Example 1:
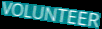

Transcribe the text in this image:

VOLUNTEER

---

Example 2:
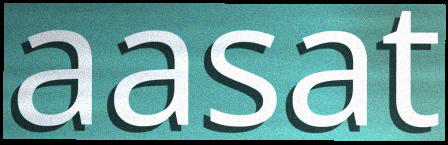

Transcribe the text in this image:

aasat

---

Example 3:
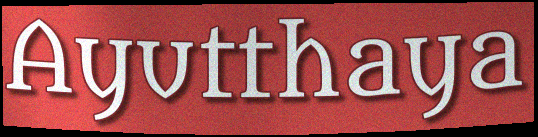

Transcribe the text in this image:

Ayutthaya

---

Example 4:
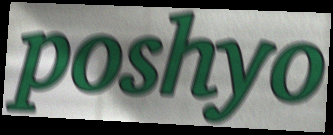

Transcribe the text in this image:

poshyo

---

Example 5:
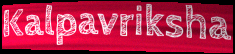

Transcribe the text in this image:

Kalpavriksha